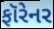
ફૉરેનર